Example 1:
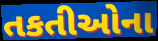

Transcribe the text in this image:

તકતીઓના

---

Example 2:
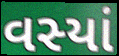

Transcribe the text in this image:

વસ્યાં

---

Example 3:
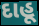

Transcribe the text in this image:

દાહૂ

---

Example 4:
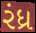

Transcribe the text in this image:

રંધ્ર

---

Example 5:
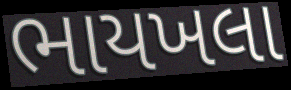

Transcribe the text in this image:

ભાયખલા